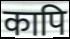
कापि